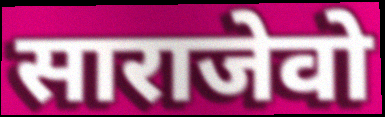
साराजेवो